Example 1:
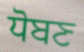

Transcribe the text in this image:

ਧੋਬਣ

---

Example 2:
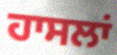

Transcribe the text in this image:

ਹਾਸਲਾਂ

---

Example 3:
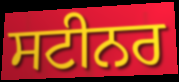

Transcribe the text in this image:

ਸਟੀਨਰ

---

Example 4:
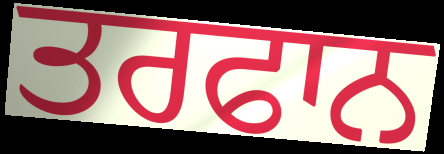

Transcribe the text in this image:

ਤਰਫਾਨ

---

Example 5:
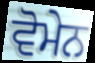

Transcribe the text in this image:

ਵੋਮੇਨ